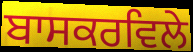
ਬਾਸਕਰਵਿਲੇ